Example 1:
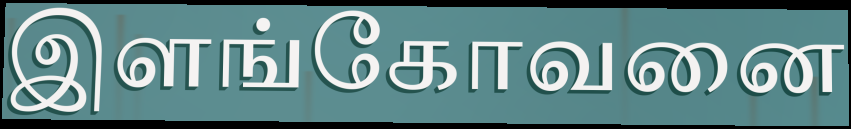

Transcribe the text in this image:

இளங்கோவனை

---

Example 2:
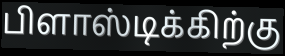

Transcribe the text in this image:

பிளாஸ்டிக்கிற்கு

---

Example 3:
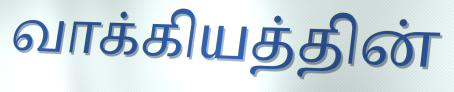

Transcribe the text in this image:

வாக்கியத்தின்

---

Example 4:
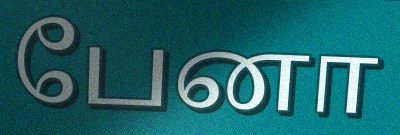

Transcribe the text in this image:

பேனா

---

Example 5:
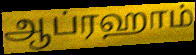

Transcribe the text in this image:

ஆப்ரஹாம்